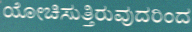
ಯೋಚಿಸುತ್ತಿರುವುದರಿಂದ